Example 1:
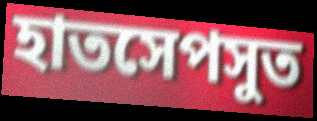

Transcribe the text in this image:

হাতসেপসুত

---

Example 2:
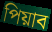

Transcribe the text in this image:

পিয়াব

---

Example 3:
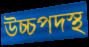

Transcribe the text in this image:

উচ্চপদস্থ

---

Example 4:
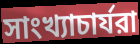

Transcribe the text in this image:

সাংখ্যাচার্যরা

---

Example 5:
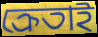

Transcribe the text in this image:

ক্রেতাই